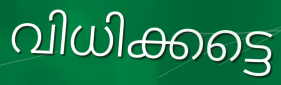
വിധിക്കട്ടെ